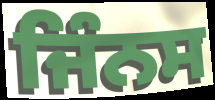
ਜਿੰਨਸ